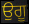
ਉਗੂ